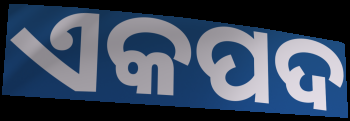
ଏକପଦ